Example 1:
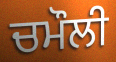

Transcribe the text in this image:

ਚਮੌਲੀ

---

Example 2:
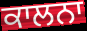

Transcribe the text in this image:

ਕਾਲਨਾ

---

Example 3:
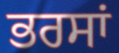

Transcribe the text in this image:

ਭਰਸਾਂ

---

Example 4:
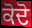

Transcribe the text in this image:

ਕੋਦੋ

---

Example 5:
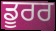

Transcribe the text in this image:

ਡੂਰਰ